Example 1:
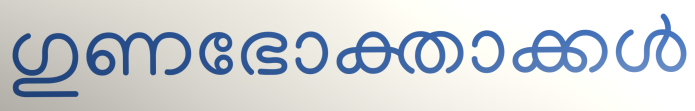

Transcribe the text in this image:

ഗുണഭോക്താക്കൾ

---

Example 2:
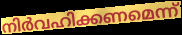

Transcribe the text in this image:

നിർവഹിക്കണമെന്ന്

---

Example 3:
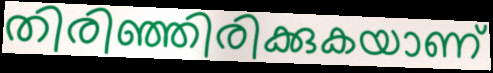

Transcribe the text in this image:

തിരിഞ്ഞിരിക്കുകയാണ്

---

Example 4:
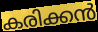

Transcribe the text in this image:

കരിക്കൻ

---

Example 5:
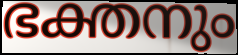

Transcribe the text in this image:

ഭക്തനും